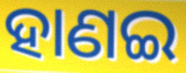
ହାଣଇ